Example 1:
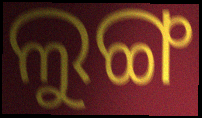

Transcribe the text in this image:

ଲୁଙ୍ଗ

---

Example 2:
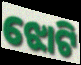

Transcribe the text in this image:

ଝୋଟି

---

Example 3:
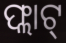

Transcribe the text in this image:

ଫ୍ଲାଟ୍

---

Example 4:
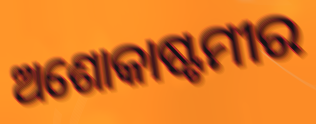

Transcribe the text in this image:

ଅଶୋକାଷ୍ଟମୀର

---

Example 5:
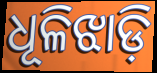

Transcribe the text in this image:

ଧୂଳିଝାଡ଼ି